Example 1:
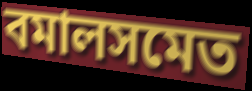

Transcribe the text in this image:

বমালসমেত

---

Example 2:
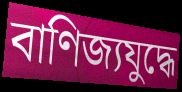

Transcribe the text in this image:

বাণিজ্যযুদ্ধে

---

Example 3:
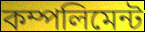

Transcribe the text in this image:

কম্পলিমেন্ট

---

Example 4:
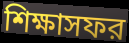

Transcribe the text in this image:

শিক্ষাসফর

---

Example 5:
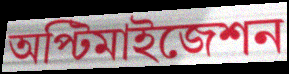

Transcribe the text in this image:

অপ্টিমাইজেশন